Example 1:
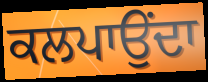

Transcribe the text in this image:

ਕਲਪਾਉਂਦਾ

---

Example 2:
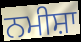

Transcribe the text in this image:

ਨਮੀਸ਼ਾ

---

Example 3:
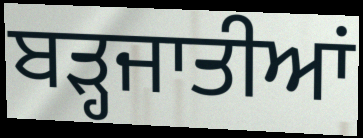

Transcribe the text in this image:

ਬੜ੍ਹਜਾਤੀਆਂ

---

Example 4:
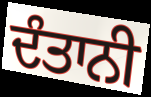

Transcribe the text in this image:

ਦੰਤਾਨੀ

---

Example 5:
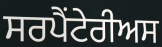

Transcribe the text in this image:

ਸਰਪੈਂਟੇਰੀਅਸ